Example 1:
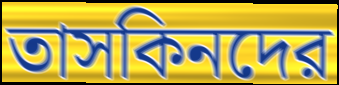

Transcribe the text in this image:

তাসকিনদের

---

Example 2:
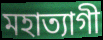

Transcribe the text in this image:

মহাত্যাগী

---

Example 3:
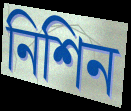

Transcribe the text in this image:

নিশিন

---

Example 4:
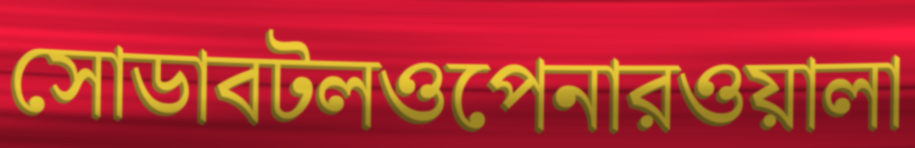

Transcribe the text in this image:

সোডাবটলওপেনারওয়ালা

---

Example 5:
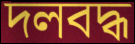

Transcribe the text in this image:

দলবদ্ধ